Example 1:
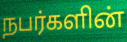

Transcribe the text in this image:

நபர்களின்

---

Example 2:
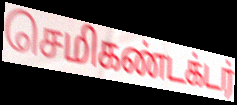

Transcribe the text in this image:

செமிகண்டக்டர்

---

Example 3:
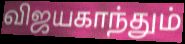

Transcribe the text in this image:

விஜயகாந்தும்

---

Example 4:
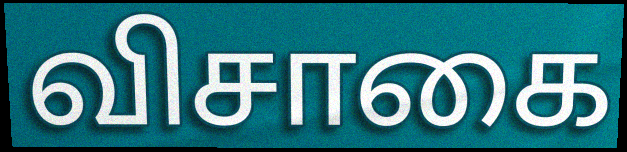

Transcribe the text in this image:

விசாகை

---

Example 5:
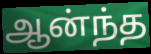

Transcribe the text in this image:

ஆன்ந்த